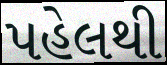
પહેલથી